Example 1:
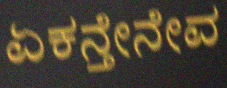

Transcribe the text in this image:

ಏಕನ್ತೇನೇವ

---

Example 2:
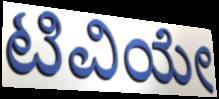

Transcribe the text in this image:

ಟಿವಿಯೇ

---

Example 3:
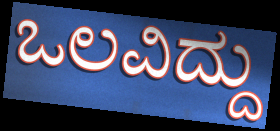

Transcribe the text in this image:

ಒಲವಿದ್ದು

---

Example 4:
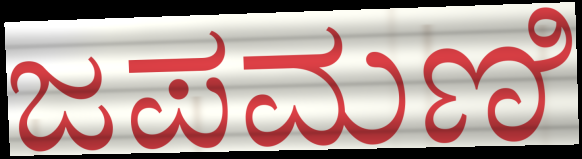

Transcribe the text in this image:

ಜಪಮಣಿ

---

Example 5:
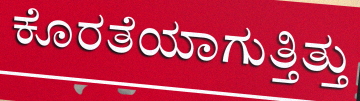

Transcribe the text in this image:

ಕೊರತೆಯಾಗುತ್ತಿತ್ತು